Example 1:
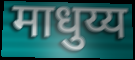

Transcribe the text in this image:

माधुय्य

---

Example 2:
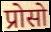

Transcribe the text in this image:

प्रोसो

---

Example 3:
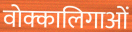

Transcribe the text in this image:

वोक्कालिगाओं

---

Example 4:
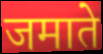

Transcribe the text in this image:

जमाते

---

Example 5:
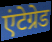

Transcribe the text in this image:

एंटेग्रेड